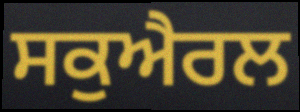
ਸਕੁਐਰਲ